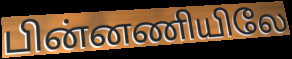
பின்னணியிலே